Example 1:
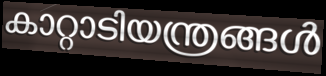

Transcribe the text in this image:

കാറ്റാടിയന്ത്രങ്ങൾ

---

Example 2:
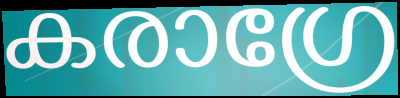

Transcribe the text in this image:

കരാഗ്രേ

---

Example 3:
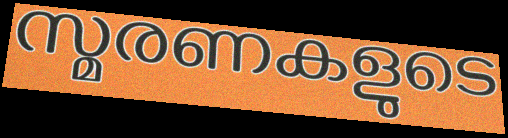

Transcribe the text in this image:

സ്മരണകളുടെ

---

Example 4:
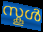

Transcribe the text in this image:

സ്കൂൾ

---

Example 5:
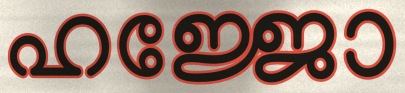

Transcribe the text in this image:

ഹജ്ജോ